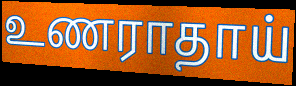
உணராதாய்